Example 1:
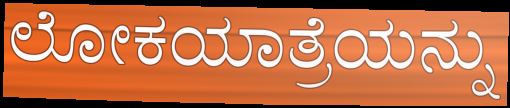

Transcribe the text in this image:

ಲೋಕಯಾತ್ರೆಯನ್ನು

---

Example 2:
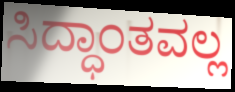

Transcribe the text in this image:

ಸಿದ್ಧಾಂತವಲ್ಲ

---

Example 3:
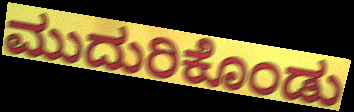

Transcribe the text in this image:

ಮುದುರಿಕೊಂಡು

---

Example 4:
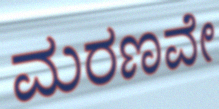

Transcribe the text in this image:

ಮರಣವೇ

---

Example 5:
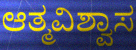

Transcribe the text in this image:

ಆತ್ಮವಿಶ್ವಾಸ